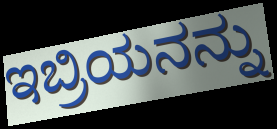
ಇಬ್ರಿಯನನ್ನು